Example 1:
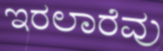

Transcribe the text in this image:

ಇರಲಾರೆವು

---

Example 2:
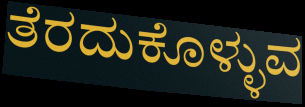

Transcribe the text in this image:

ತೆರದುಕೊಳ್ಳುವ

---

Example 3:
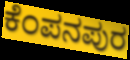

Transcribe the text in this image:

ಕೆಂಪನಪುರ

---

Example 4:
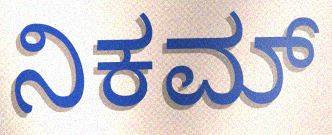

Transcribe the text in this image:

ನಿಕಮ್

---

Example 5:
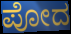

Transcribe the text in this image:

ಪೋದ